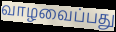
வாழவைப்பது